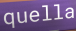
quella